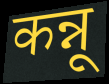
कन्नू